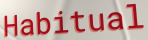
Habitual